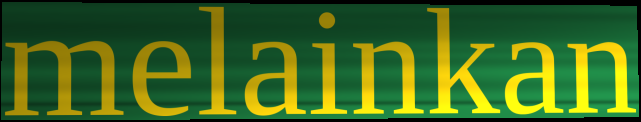
melainkan